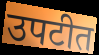
उपटीत